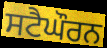
ਸਟੈਘੌਰਨ